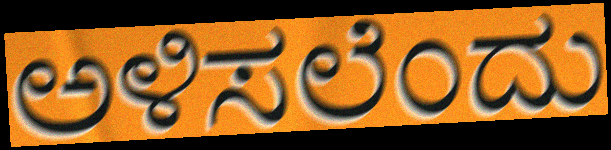
ಅಳಿಸಲೆಂದು